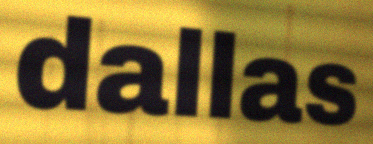
dallas